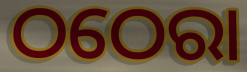
ଠଠେରା